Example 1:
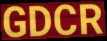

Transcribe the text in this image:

GDCR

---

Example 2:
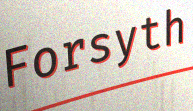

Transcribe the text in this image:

Forsyth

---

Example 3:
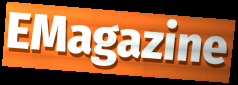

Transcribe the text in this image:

EMagazine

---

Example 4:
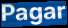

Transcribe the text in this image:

Pagar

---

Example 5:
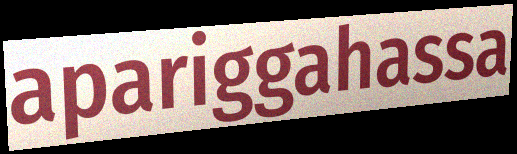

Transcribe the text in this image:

apariggahassa